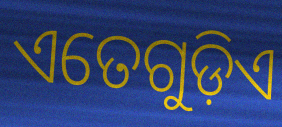
ଏତେଗୁଡ଼ିଏ